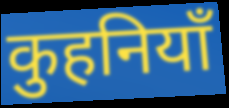
कुहनियाँ